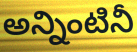
అన్నింటినీ